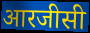
आरजीसी